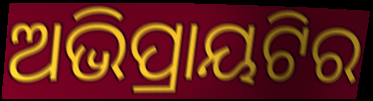
ଅଭିପ୍ରାୟଟିର